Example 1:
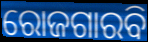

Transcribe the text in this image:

ରୋଜଗାରବି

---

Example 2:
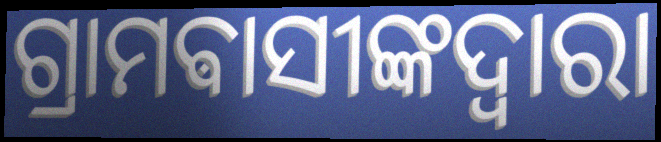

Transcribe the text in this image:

ଗ୍ରାମଵାସୀଙ୍କଦ୍ୱାରା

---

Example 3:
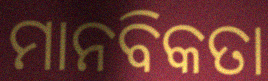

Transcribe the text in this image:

ମାନବିକତା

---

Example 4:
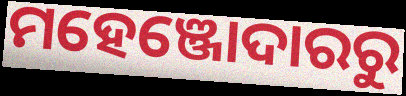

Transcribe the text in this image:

ମହେଞ୍ଜୋଦାରରୁ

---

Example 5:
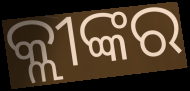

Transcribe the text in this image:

କ୍ଲୀଙ୍କର